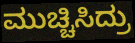
ಮುಚ್ಚಿಸಿದ್ರು